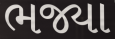
ભજ્યા